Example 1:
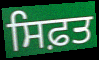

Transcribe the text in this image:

ਸਿਫ਼ਤ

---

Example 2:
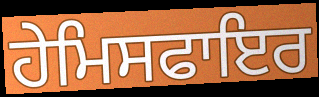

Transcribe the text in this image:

ਹੇਮਿਸਫਾਇਰ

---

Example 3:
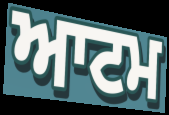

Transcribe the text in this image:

ਆਟਮ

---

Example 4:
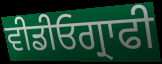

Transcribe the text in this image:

ਵੀਡੀਓਗ੍ਰਾਫੀ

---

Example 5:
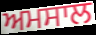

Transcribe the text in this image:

ਅਮਸਾਲ